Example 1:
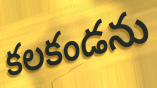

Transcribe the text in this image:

కలకండను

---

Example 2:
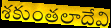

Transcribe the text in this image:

శకుంతలాదేవి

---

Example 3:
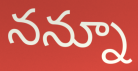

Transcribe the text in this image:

నన్నూ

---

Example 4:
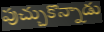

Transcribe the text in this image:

పుచ్చుకొన్నాడు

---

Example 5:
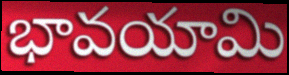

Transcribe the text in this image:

భావయామి